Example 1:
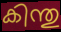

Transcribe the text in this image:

കിന്തു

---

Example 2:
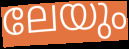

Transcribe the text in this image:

ലേയും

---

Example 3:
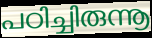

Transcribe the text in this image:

പഠിച്ചിരുന്നൂ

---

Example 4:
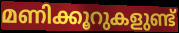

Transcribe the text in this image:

മണിക്കൂറുകളുണ്ട്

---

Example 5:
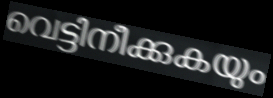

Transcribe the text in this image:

വെട്ടിനീക്കുകയും